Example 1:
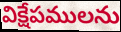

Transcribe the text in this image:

విక్షేపములను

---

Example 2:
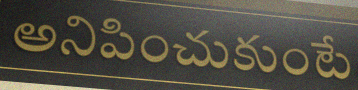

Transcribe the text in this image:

అనిపించుకుంటే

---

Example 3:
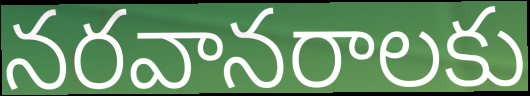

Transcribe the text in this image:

నరవానరాలకు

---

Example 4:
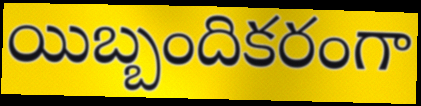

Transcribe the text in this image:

యిబ్బందికరంగా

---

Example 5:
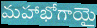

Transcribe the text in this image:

మహాభోగాయై